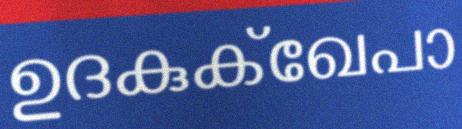
ഉദകുക്ഖേപാ